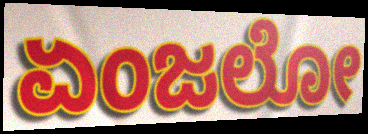
ಏಂಜಲೋ